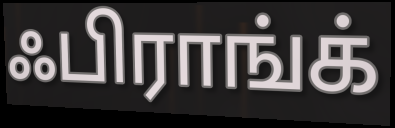
ஃபிராங்க்